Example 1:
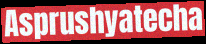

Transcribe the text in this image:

Asprushyatecha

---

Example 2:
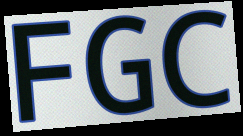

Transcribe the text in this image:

FGC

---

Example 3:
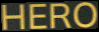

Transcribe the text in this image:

HERO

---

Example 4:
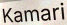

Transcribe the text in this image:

Kamari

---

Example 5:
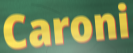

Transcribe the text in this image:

Caroni